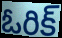
ఓరిక్